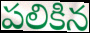
పలికిన